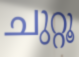
ചുറ്റൂ